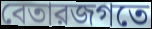
বেতারজগতে